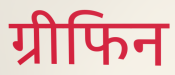
ग्रीफिन